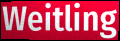
Weitling